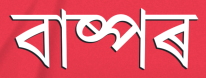
বাষ্পৰ